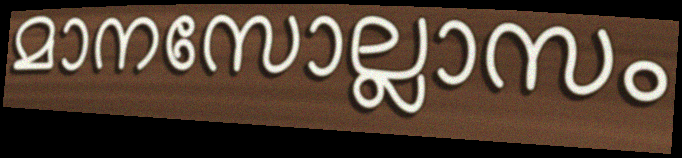
മാനസോല്ലാസം